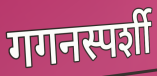
गगनस्पर्शी